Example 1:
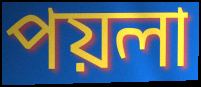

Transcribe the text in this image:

পয়লা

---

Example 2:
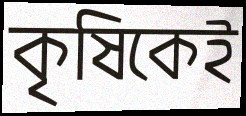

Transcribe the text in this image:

কৃষিকেই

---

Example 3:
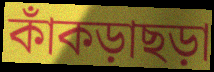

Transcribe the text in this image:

কাঁকড়াছড়া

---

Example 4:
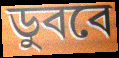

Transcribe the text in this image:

ডুববে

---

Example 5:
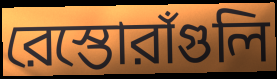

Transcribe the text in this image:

রেস্তোরাঁগুলি